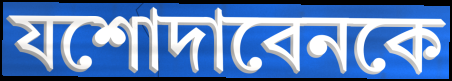
যশোদাবেনকে